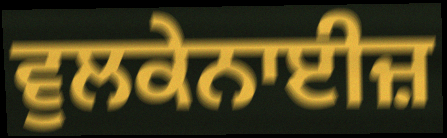
ਵੁਲਕੇਨਾਈਜ਼